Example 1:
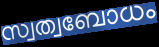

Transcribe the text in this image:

സ്വത്വബോധം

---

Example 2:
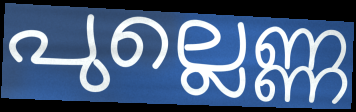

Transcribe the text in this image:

പുല്ലെണ്ണ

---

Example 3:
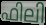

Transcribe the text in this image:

ഫിലി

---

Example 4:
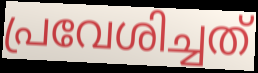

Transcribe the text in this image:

പ്രവേശിച്ചത്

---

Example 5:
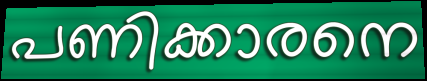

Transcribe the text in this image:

പണിക്കാരനെ